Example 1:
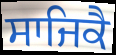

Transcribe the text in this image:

ਸਾਜਿਕੈ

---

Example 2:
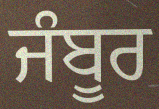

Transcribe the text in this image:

ਜੰਬੂਰ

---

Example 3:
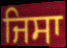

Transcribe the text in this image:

ਜਿਸਾ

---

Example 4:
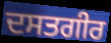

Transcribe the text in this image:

ਦਸਤਗੀਰ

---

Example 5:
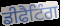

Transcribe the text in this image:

ਡੀਫੈਟਿੰਗ